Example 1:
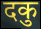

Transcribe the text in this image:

दकु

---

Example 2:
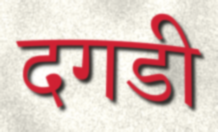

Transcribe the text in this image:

दगडी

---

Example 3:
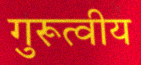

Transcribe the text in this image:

गुरूत्वीय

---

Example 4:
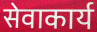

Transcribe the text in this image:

सेवाकार्य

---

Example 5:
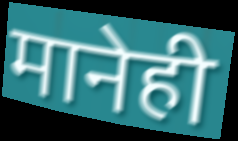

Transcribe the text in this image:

मानेही